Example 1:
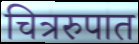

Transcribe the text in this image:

चित्ररुपात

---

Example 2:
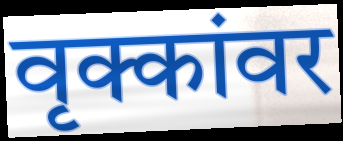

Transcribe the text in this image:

वृक्कांवर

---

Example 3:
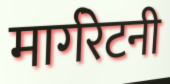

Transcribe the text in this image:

मार्गरेटनी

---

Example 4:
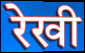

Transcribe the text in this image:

रेखी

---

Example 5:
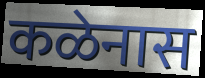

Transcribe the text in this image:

कळेनास